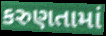
કરુણતામાં